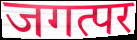
जगत्पर